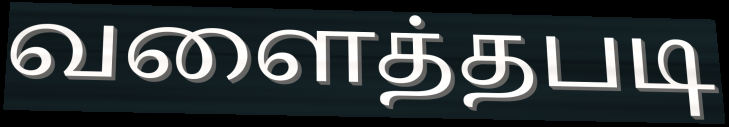
வளைத்தபடி